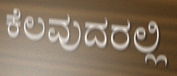
ಕೆಲವುದರಲ್ಲಿ